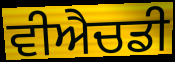
ਵੀਐਚਡੀ